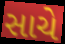
સાચે